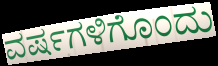
ವರ್ಷಗಳಿಗೊಂದು